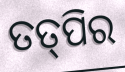
ତତ୍‌ପିର